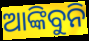
ଆଙ୍କିବୁନି